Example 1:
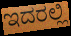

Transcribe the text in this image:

ಇದರಲ್ಲಿ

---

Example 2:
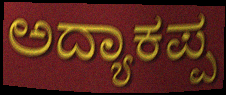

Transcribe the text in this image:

ಅದ್ಯಾಕಪ್ಪ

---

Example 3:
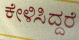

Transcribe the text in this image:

ಕೇಳಿಸಿದ್ದರೆ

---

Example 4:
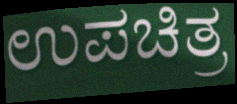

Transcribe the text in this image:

ಉಪಚಿತ್ರ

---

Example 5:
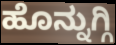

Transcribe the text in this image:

ಹೊನ್ನುಗ್ಗಿ